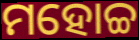
ମହୋଚ୍ଚ